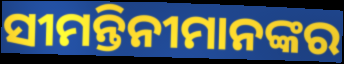
ସୀମନ୍ତିନୀମାନଙ୍କର